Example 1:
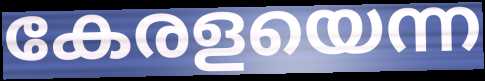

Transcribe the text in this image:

കേരളയെന്ന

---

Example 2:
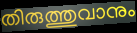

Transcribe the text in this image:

തിരുത്തുവാനും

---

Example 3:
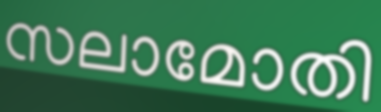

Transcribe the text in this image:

സലാമോതി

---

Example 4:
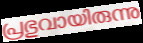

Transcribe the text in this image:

പ്രഭുവായിരുന്നു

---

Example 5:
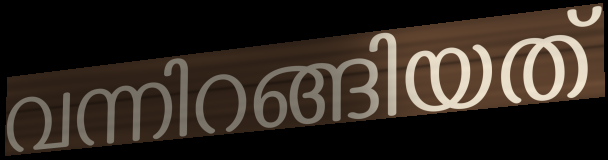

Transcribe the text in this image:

വന്നിറങ്ങിയത്